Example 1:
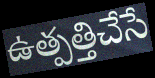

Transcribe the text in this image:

ఉత్పత్తిచేసే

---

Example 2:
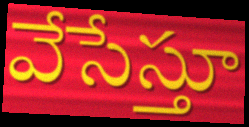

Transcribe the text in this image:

వేసేస్తూ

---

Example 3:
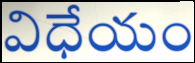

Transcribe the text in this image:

విధేయం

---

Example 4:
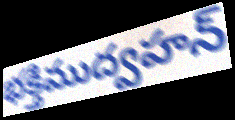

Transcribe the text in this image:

భక్తిముద్వహన్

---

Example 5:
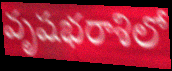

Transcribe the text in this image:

వృషభరాశిలో